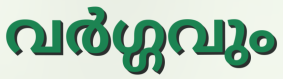
വർഗ്ഗവും